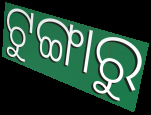
ଟୁଙ୍ଗାରୁ